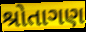
શ્રોતાગણ